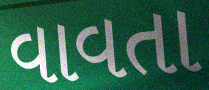
વાવતા